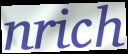
nrich